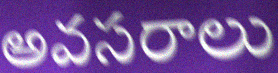
అవసరాలు